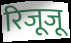
रिजूजू